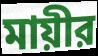
মায়ীর